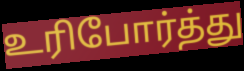
உரிபோர்த்து